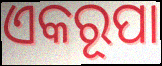
ଏକରୂପା